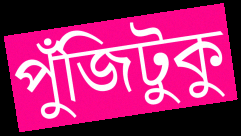
পুঁজিটুকু